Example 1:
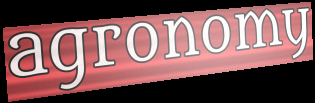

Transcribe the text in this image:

agronomy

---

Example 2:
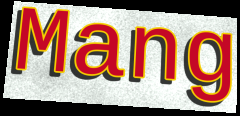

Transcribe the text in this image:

Mang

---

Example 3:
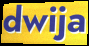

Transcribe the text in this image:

dwija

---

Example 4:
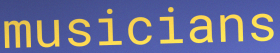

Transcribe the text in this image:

musicians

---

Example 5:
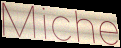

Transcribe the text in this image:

Miche